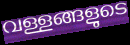
വള്ളങ്ങളുടെ